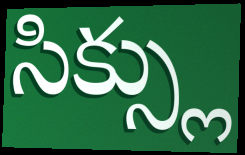
సిక్స్లు